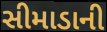
સીમાડાની